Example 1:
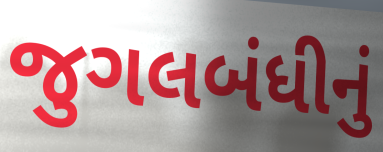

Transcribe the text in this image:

જુગલબંધીનું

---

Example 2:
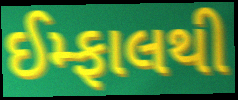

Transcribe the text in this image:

ઈમ્ફાલથી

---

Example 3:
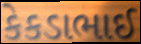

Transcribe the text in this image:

કેકડાભાઈ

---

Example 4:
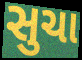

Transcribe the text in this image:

સુચા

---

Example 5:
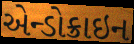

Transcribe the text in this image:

એન્ડોક્રાઇન